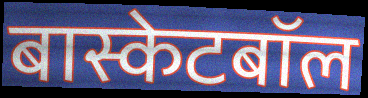
बास्‍केटबॉल